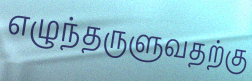
எழுந்தருளுவதற்கு